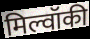
मिल्वॉकी